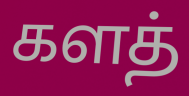
களத்